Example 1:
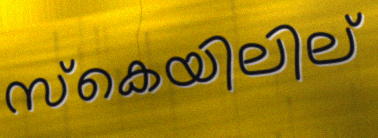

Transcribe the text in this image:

സ്കെയിലില്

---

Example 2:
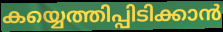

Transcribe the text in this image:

കയ്യെത്തിപ്പിടിക്കാൻ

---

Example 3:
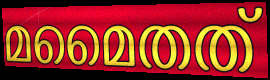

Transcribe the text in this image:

മമൈതത്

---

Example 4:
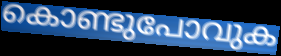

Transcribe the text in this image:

കൊണ്ടുപോവുക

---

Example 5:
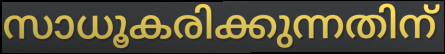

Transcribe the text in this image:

സാധൂകരിക്കുന്നതിന്